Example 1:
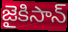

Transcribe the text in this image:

జైకిసాన్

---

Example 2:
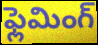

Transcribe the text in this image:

ఫ్లెమింగ్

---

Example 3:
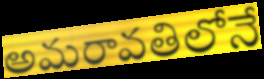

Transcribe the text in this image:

అమరావతిలోనే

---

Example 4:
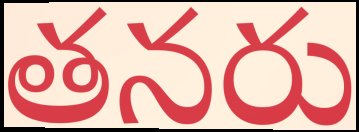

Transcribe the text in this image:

తనరు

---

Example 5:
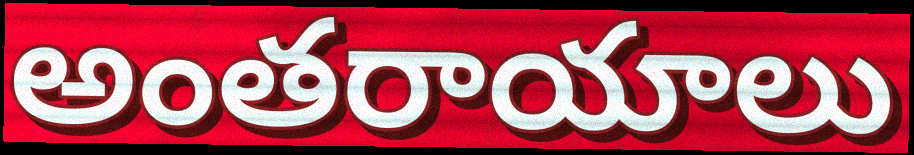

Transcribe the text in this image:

అంతరాయాలు